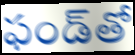
ఫండ్‌తో